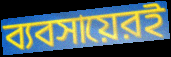
ব্যবসায়েরই